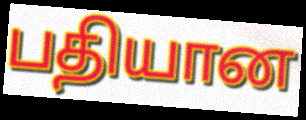
பதியான